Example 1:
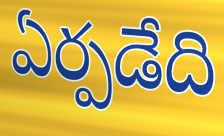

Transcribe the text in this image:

ఏర్పడేది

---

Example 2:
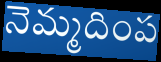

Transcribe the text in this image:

నెమ్మదింప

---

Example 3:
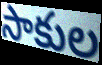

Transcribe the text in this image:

సాకుల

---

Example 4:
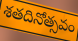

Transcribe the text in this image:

శతదినోత్సవం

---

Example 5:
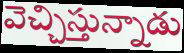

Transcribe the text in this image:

వెచ్చిస్తున్నాడు